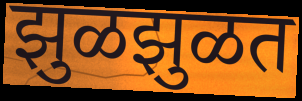
झुळझुळत